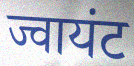
ज्वायंट